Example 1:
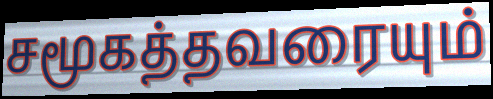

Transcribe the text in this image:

சமூகத்தவரையும்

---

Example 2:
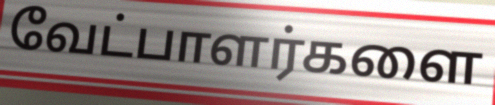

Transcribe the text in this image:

வேட்பாளர்களை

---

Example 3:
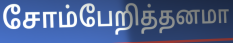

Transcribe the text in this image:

சோம்பேறித்தனமா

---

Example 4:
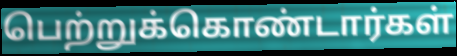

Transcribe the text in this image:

பெற்றுக்கொண்டார்கள்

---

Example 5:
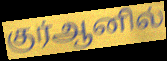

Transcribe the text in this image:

குர்ஆனில்